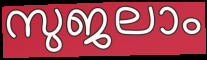
സുജലാം